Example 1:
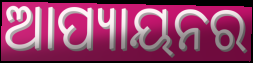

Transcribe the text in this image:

ଆପ୍ୟାୟନର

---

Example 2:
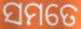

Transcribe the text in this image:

ସମତେ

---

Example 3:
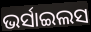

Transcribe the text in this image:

ଭର୍ସାଇଲସ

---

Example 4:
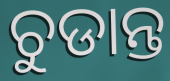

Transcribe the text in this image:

ଚୁଡାନ୍ତ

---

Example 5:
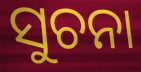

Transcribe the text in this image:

ସୁଚନା